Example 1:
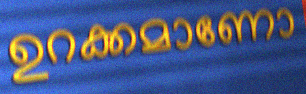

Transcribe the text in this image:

ഉറക്കമാണോ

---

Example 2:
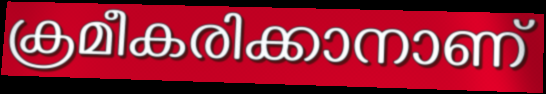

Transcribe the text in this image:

ക്രമീകരിക്കാനാണ്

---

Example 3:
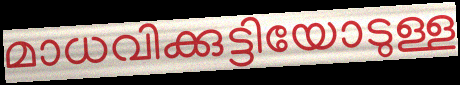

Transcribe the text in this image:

മാധവിക്കുട്ടിയോടുള്ള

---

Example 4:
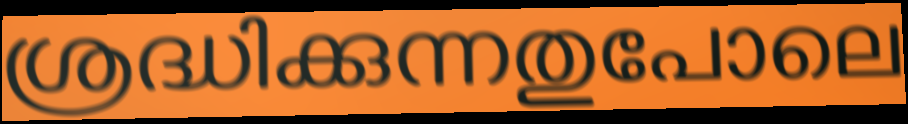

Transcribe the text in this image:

ശ്രദ്ധിക്കുന്നതുപോലെ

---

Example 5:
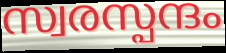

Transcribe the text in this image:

സ്വരസ്പന്ദം